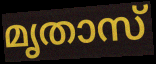
മൃതാസ്